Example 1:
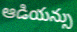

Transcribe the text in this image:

ఆడియన్సు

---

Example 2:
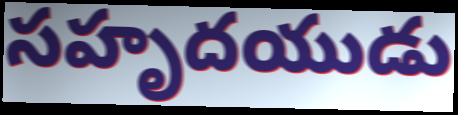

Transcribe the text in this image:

సహృదయుడు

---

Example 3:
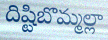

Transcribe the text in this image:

దిష్టిబొమ్మల్లా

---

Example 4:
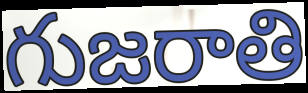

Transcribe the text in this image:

గుజరాతి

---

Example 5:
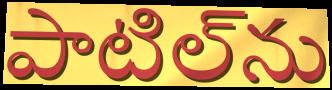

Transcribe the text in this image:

పాటిల్‌ను